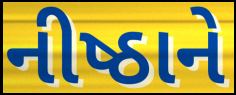
નીષ્ઠાને